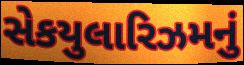
સેકયુલારિઝમનું